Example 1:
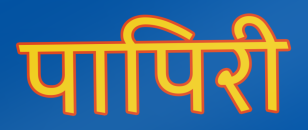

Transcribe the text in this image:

पापिरी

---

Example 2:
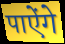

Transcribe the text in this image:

पाऐंगे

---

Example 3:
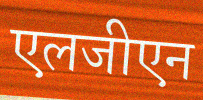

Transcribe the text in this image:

एलजीएन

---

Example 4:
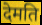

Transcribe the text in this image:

देमति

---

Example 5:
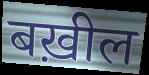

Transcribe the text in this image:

बख़ील